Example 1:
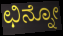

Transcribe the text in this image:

ಛಿನ್ನೋ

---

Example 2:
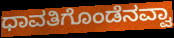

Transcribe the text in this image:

ಧಾವತಿಗೊಂಡೆನವ್ವಾ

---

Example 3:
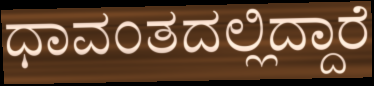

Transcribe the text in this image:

ಧಾವಂತದಲ್ಲಿದ್ದಾರೆ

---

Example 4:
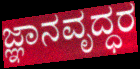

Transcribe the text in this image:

ಜ್ಞಾನವೃದ್ಧರ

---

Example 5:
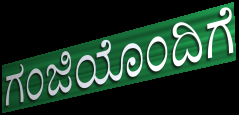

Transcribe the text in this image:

ಗಂಜಿಯೊಂದಿಗೆ